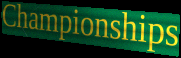
Championships